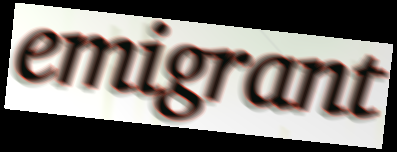
emigrant